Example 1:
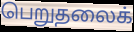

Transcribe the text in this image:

பெறுதலைக்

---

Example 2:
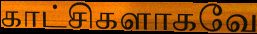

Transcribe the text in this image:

காட்சிகளாகவே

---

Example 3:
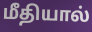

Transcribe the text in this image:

மீதியால்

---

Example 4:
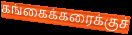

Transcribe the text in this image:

கங்கைக்கரைக்குச்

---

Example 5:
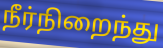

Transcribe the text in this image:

நீர்நிறைந்து